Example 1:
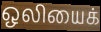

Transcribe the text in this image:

ஒலியைக்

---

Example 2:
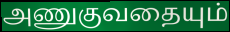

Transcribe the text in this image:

அணுகுவதையும்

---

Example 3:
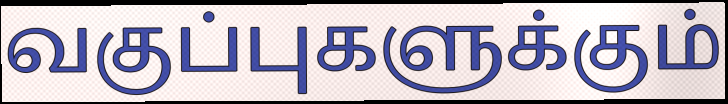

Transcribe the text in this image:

வகுப்புகளுக்கும்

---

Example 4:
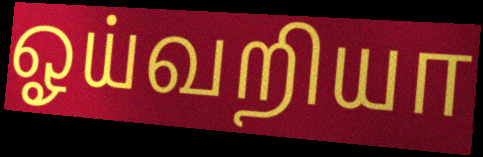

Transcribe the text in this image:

ஓய்வறியா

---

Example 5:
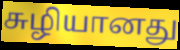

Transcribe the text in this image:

சுழியானது